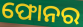
ଫୋନର